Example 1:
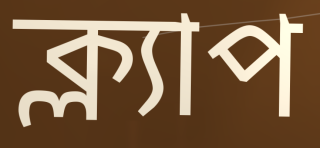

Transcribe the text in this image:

ক্ল্যাপ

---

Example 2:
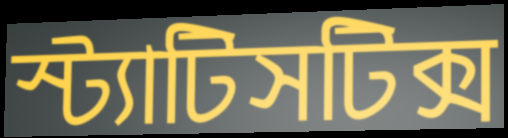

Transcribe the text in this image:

স্ট্যাটিসটিক্স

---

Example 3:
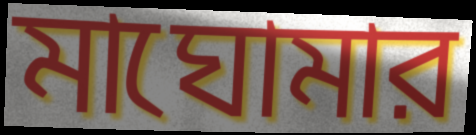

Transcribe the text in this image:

মাঘোমার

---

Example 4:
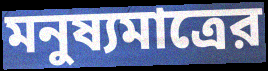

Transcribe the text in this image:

মনুষ্যমাত্রের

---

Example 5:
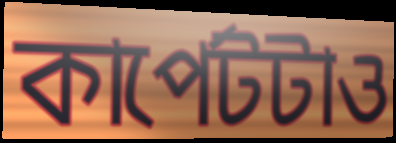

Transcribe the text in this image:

কার্পেটটাও